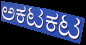
ಅಕಟಕಟ